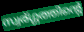
സ്വര്ഗ്ഗത്തിന്റെ